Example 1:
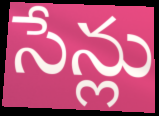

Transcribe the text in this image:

సేన్లు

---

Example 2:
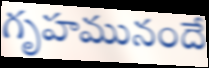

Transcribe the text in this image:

గృహమునందే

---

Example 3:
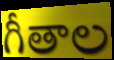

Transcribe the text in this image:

గీతాల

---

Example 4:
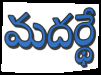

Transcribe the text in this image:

మదర్థే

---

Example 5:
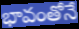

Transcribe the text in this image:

భావంతోనే